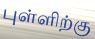
புள்ளிற்கு